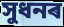
সুধনৰ